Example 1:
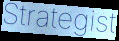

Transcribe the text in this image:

Strategist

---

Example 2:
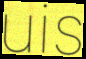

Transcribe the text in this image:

uis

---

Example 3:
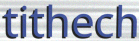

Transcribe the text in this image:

tithech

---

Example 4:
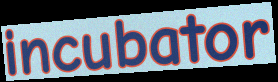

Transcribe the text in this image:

incubator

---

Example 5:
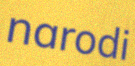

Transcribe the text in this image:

narodi